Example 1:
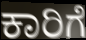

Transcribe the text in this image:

ಕಾರಿಗೆ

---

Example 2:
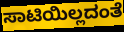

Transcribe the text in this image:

ಸಾಟಿಯಿಲ್ಲದಂತೆ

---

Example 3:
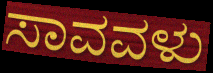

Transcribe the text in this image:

ಸಾವವಳು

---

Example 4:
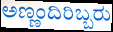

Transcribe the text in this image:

ಅಣ್ಣಂದಿರಿಬ್ಬರು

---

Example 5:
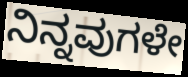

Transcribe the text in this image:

ನಿನ್ನವುಗಳೇ